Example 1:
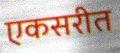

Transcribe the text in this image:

एकसरीत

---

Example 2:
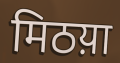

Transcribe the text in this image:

मिठय़ा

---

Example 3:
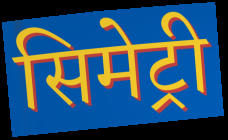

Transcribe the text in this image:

सिमेट्री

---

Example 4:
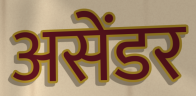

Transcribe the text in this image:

असेंडर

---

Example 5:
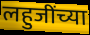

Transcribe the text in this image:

लहुजींच्या